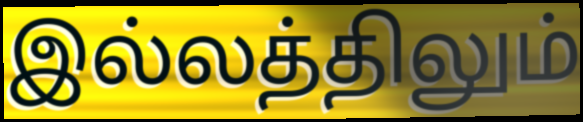
இல்லத்திலும்